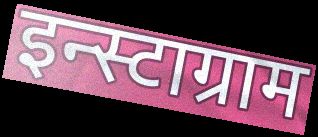
इन्स्टाग्राम